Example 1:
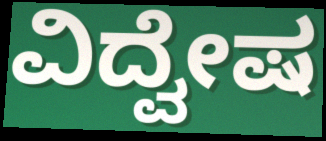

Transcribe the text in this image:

ವಿದ್ವೇಷ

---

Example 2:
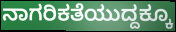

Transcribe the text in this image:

ನಾಗರಿಕತೆಯುದ್ದಕ್ಕೂ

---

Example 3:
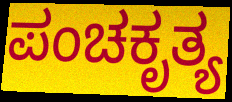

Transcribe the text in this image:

ಪಂಚಕೃತ್ಯ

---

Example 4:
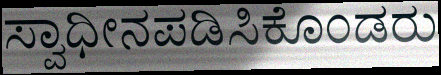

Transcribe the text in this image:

ಸ್ವಾಧೀನಪಡಿಸಿಕೊಂಡರು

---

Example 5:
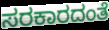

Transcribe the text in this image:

ಸರಕಾರದಂತೆ